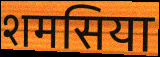
शमसिया